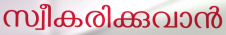
സ്വീകരിക്കുവാൻ